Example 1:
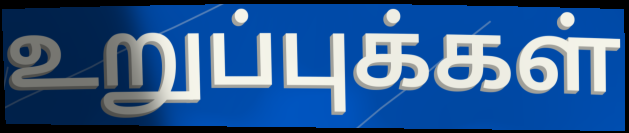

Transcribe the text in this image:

உறுப்புக்கள்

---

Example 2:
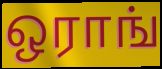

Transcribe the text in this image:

ஒராங்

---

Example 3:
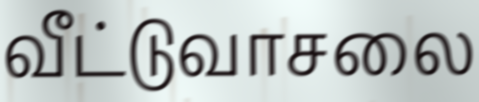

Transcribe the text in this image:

வீட்டுவாசலை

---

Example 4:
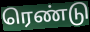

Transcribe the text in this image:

ரெண்டு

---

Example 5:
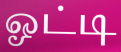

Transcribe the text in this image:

ஓட்டி